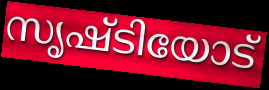
സൃഷ്ടിയോട്